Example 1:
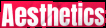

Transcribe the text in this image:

Aesthetics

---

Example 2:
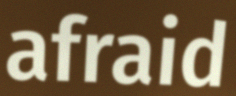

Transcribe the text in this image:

afraid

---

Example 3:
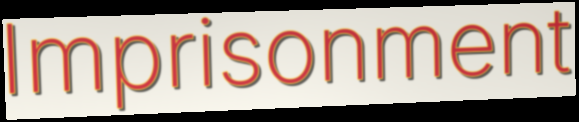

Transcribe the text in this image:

Imprisonment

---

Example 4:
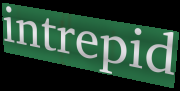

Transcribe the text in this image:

intrepid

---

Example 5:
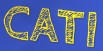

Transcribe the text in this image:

CATI